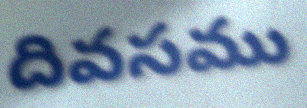
దివసము